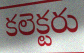
కలెక్టరు